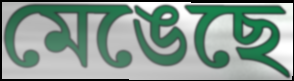
মেঙেছে